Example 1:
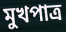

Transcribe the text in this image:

মুখপাত্র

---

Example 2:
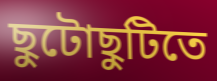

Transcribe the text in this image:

ছুটোছুটিতে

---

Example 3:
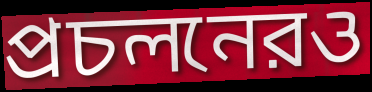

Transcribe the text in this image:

প্রচলনেরও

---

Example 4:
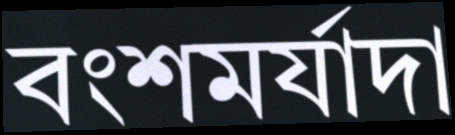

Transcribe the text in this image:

বংশমর্যাদা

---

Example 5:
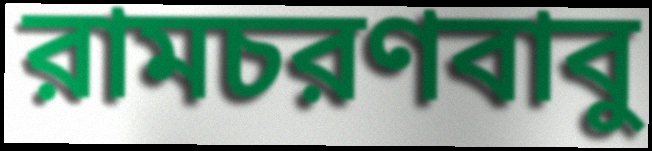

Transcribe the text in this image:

রামচরণবাবু